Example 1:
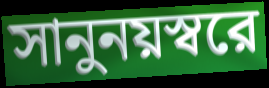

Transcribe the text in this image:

সানুনয়স্বরে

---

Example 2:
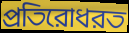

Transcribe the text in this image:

প্রতিরোধরত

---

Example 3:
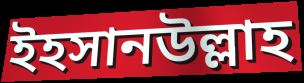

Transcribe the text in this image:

ইহসানউল্লাহ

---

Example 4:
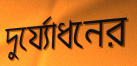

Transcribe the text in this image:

দুর্য্যোধনের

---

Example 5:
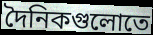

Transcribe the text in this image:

দৈনিকগুলোতে